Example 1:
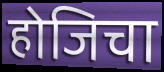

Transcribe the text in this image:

होजिचा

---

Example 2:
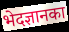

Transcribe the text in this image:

भेदज्ञानका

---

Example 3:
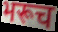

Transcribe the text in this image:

भरूच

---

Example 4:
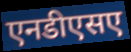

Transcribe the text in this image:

एनडीएसए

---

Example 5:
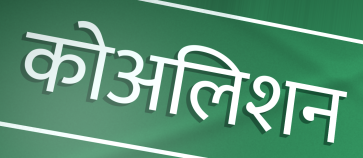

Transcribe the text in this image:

कोअलिशन